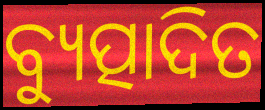
ବ୍ୟୁତ୍ପାଦିତ